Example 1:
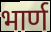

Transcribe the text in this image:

भार्ण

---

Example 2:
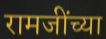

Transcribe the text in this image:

रामजींच्या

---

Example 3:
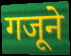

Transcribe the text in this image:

गजूने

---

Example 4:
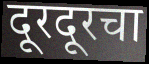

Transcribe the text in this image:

दूरदूरचा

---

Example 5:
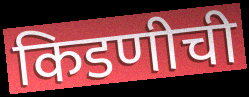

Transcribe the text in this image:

किडणीची